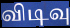
விடிவு